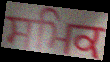
ਸਮਿਕ